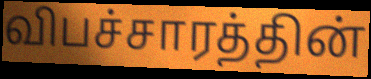
விபச்சாரத்தின்